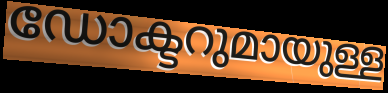
ഡോക്ടറുമായുള്ള